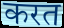
करत